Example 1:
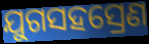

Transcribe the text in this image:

ଯୁଗସହସ୍ରେଣ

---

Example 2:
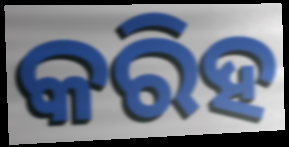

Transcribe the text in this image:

କରିହ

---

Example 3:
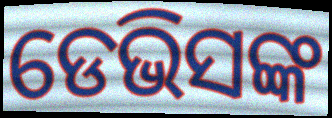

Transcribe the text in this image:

ଡେଭିସଙ୍କ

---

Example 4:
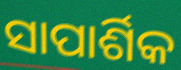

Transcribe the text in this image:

ସାପାର୍ଶିକ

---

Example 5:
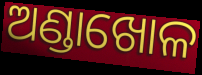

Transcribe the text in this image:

ଅଣ୍ଡାଖୋଳ